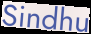
Sindhu